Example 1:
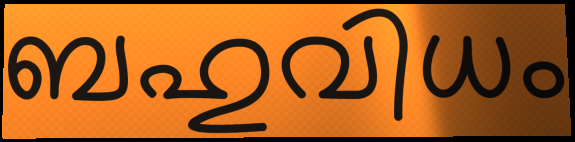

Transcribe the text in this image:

ബഹുവിധം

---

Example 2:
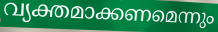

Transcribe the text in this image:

വ്യക്തമാക്കണമെന്നും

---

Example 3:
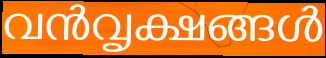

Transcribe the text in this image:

വൻവൃക്ഷങ്ങൾ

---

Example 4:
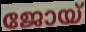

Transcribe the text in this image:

ജോയ്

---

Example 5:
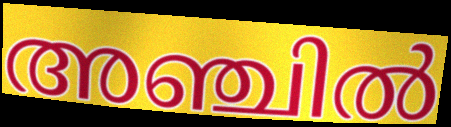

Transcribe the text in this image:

അഞ്ചിൽ